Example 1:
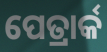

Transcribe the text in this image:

ପେତ୍ରାର୍କ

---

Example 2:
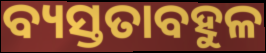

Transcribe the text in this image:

ବ୍ୟସ୍ତତାବହୁଳ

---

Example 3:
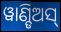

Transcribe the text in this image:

ୱାଣ୍ଡିଅସ୍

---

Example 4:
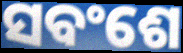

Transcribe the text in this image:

ସବଂଶେ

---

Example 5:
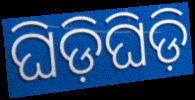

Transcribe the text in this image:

ଘିଡ଼ିଘିଡ଼ି